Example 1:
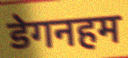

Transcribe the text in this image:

डेगनहम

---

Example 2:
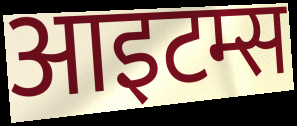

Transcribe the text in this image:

आइटम्‍स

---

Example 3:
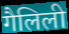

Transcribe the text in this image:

गैलिली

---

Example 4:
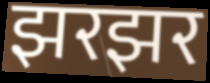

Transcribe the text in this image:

झरझर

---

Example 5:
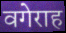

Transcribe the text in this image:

वगेराह